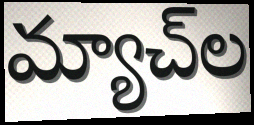
మ్యాచ్‌ల